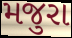
મજુરા